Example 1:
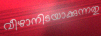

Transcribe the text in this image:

വീഴാനിടയാക്കുന്നതു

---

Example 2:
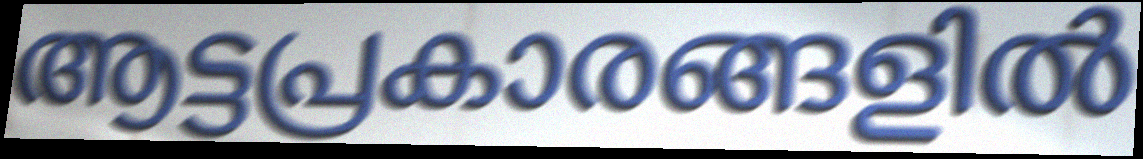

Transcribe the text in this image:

ആട്ടപ്രകാരങ്ങളിൽ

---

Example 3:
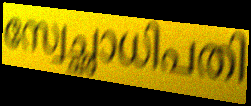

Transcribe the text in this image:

സ്വേച്ഛാധിപതി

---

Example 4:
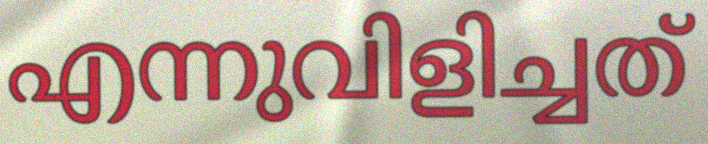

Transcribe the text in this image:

എന്നുവിളിച്ചത്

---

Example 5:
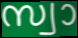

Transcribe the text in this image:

സ്വാ